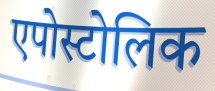
एपोस्टोलिक